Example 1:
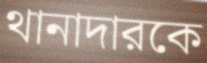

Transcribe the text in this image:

থানাদারকে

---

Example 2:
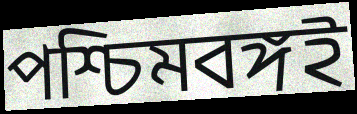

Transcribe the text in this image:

পশ্চিমবঙ্গই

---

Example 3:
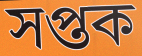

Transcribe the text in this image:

সপ্তক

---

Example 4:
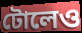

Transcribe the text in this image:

টোলেও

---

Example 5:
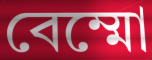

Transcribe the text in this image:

বেম্মো